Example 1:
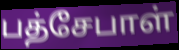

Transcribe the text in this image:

பத்சேபாள்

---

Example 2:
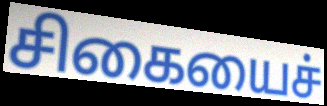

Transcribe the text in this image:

சிகையைச்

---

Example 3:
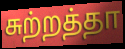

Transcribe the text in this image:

சுற்றத்தா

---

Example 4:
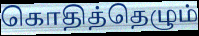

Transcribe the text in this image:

கொதித்தெழும்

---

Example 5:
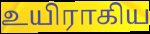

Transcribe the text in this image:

உயிராகிய